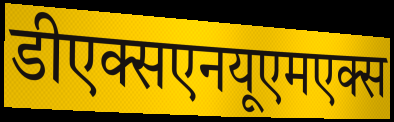
डीएक्सएनयूएमएक्स